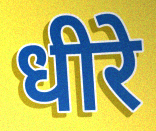
धीरे